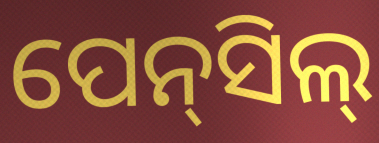
ପେନ୍‌ସିଲ୍